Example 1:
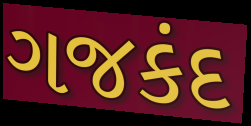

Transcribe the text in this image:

ગજકંદ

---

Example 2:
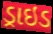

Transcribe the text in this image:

ડ્રાઇડ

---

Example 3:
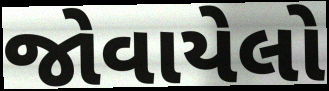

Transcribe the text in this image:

જોવાયેલો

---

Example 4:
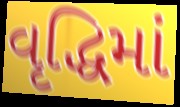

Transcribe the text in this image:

વૃદ્ધિમાં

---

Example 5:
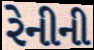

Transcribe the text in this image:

રેનીની